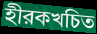
হীরকখচিত